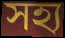
সহ্য